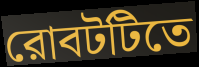
রোবটটিতে